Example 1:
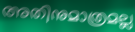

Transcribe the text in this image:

അതിനുമാത്രമല്ല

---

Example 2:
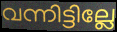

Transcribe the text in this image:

വന്നിട്ടില്ലേ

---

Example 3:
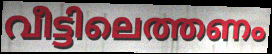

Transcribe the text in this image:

വീട്ടിലെത്തണം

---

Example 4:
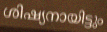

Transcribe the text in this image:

ശിഷ്യനായിട്ടും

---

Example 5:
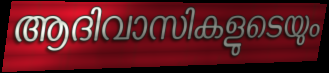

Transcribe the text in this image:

ആദിവാസികളുടെയും